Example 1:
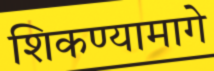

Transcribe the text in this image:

शिकण्यामागे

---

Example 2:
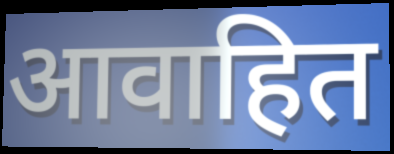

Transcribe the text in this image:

आवाहित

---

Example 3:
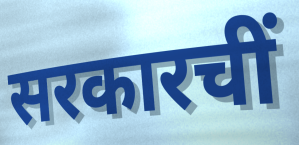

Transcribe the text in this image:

सरकारचीं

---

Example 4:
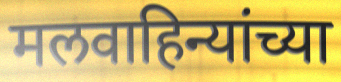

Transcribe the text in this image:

मलवाहिन्यांच्या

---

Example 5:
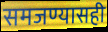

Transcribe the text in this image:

समजण्यासही